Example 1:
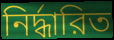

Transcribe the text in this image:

নির্দ্ধারিত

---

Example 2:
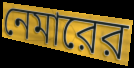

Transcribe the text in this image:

নেমারের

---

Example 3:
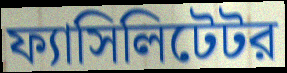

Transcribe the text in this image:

ফ্যাসিলিটেটর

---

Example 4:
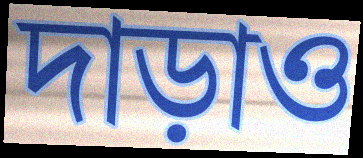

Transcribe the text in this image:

দাড়াও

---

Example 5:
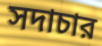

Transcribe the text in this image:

সদাচার